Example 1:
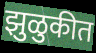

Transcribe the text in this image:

झुळुकीत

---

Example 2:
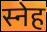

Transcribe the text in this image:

स्नेह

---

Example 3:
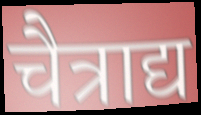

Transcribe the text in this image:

चैत्राद्य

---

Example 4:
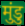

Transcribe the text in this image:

मुंडु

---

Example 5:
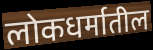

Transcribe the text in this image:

लोकधर्मातील